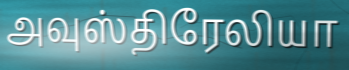
அவுஸ்திரேலியா